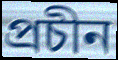
প্ৰচীন